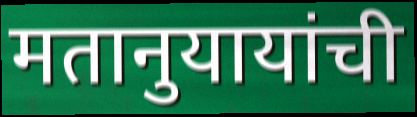
मतानुयायांची